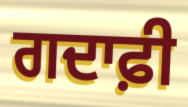
ਗਦਾਫ਼ੀ